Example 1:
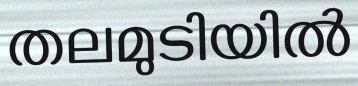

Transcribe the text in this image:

തലമുടിയിൽ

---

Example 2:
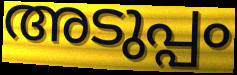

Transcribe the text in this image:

അടുപ്പം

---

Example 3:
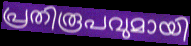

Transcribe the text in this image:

പ്രതിരൂപവുമായി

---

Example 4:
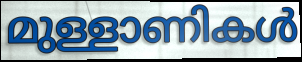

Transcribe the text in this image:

മുള്ളാണികൾ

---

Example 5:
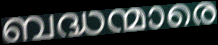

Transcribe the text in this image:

ബദ്ധന്മാരെ